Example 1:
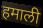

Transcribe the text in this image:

हमाली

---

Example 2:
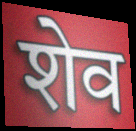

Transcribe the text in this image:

शेव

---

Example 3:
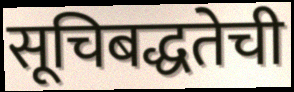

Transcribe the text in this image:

सूचिबद्धतेची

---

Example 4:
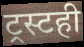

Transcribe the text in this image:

ट्रस्टही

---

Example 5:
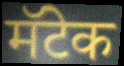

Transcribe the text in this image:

मॅटेक